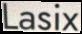
Lasix